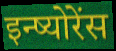
इन्ष्योरेंस